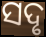
ସଦୃ